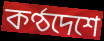
কণ্ঠদেশে